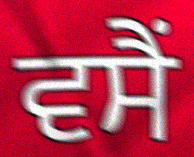
ਵਸੈਂ